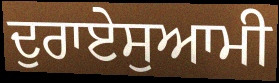
ਦੁਰਾਏਸੁਆਮੀ